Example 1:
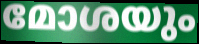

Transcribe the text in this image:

മോശയും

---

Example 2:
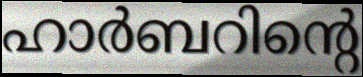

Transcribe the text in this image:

ഹാർബറിന്റെ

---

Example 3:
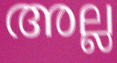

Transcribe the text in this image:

അല്ല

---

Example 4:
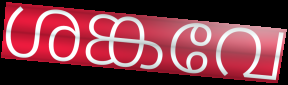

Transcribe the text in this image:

ശങ്കവേ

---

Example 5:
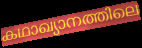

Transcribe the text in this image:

കഥാഖ്യാനത്തിലെ